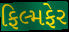
ફિલ્મફેર